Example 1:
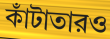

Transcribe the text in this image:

কাঁটাতারও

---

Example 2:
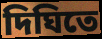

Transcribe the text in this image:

দিঘিতে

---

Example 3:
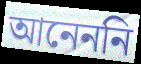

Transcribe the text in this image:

আনেননি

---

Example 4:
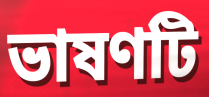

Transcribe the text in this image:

ভাষণটি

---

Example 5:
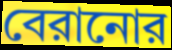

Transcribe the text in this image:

বেরানোর